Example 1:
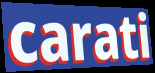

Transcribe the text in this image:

carati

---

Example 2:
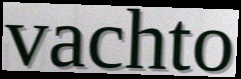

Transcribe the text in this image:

vachto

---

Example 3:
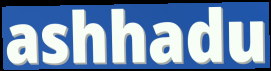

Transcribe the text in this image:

ashhadu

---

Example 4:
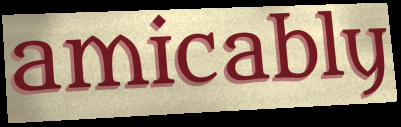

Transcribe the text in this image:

amicably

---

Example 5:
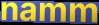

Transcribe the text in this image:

namm